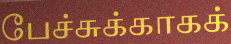
பேச்சுக்காகக்